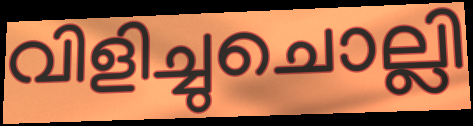
വിളിച്ചുചൊല്ലി